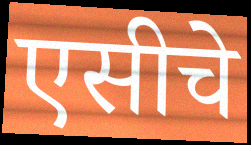
एसीचे